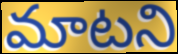
మాటని